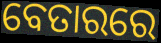
ବେତାରରେ